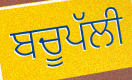
ਬਚੂਪੱਲੀ